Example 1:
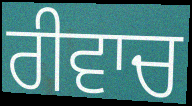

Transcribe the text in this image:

ਰੀਵਾਚ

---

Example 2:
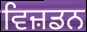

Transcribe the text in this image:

ਵਿਜ਼ਡਨ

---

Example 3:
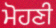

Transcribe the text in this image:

ਮੋਹਣੀ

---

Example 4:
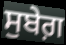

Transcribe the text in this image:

ਸੁਬੇਗ਼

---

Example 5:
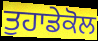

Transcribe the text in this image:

ਤੁਹਾਡੇਕੋਲ